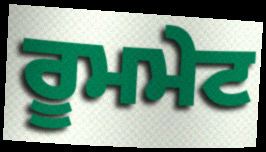
ਰੂਮਮੇਟ